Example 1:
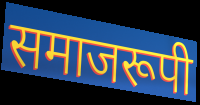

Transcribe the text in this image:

समाजरूपी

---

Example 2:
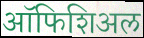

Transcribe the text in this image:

ऑफिशिअल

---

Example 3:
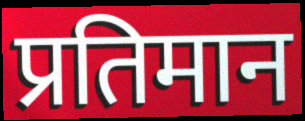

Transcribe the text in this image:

प्रतिमान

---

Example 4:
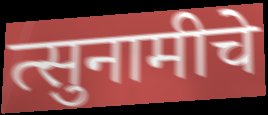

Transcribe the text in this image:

त्सुनामीचे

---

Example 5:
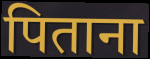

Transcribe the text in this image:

पिताना